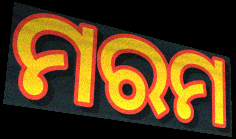
ମରମ